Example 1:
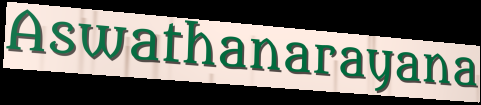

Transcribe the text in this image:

Aswathanarayana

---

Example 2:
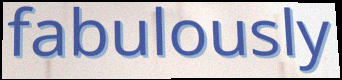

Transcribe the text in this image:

fabulously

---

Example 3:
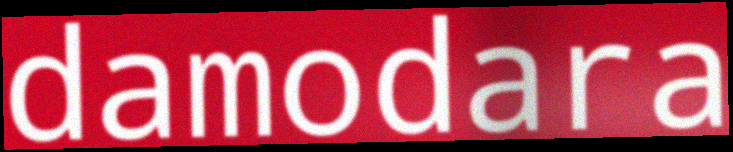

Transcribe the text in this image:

damodara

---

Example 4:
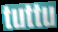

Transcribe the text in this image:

tuttu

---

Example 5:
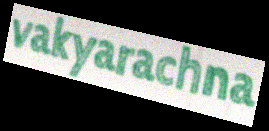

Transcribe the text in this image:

vakyarachna